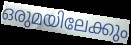
ഒരുമയിലേക്കും